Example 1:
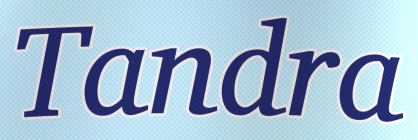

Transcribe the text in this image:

Tandra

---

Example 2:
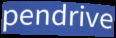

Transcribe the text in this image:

pendrive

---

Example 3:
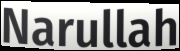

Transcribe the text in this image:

Narullah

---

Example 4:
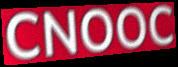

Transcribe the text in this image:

CNOOC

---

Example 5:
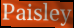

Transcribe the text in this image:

Paisley